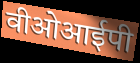
वीओआईपी